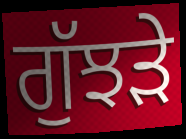
ਗੁੱਝੜੇ